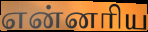
என்னரிய